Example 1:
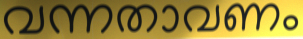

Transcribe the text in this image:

വന്നതാവണം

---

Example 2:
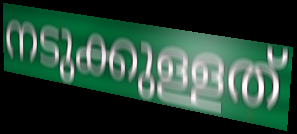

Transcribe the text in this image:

നടുക്കുള്ളത്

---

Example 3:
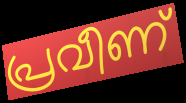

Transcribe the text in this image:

പ്രവീണ്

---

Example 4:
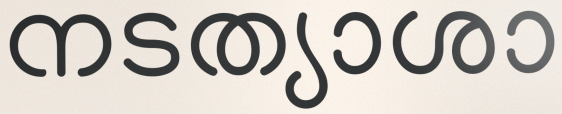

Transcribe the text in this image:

നടത്യാശാ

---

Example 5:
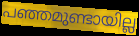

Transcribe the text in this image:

പഞ്ഞമുണ്ടായില്ല